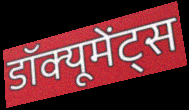
डॉक्यूमेंट्स